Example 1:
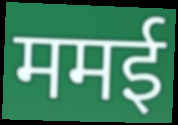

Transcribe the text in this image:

ममई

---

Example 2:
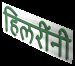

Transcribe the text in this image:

हिलरींनी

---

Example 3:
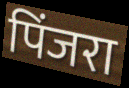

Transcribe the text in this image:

पिंजरा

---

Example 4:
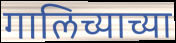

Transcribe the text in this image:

गालिच्याच्या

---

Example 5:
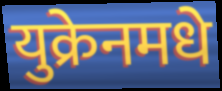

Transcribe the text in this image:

युक्रेनमधे